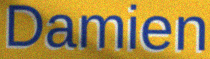
Damien